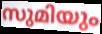
സുമിയും